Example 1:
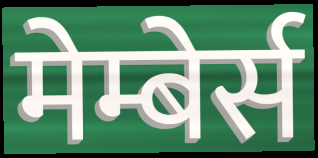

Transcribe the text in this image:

मेम्बेर्स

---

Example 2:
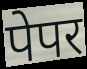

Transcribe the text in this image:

पेपर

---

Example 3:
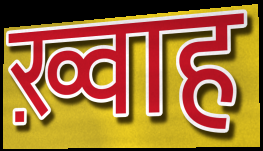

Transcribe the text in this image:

ख़्वाह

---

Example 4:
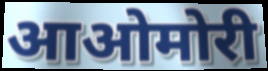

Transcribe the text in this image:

आओमोरी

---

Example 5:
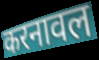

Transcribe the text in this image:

करनावल